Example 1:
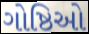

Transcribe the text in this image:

ગોષ્ઠિઓ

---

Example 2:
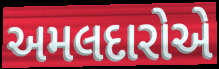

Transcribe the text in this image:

અમલદારોએ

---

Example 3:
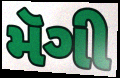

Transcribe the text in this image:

મૅગી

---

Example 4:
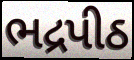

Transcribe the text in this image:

ભદ્રપીઠ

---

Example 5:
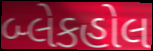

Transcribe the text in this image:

બ્લેકહોલ